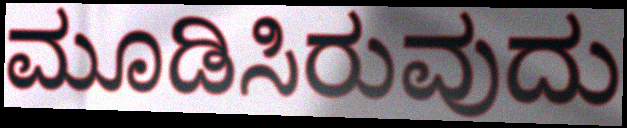
ಮೂಡಿಸಿರುವುದು